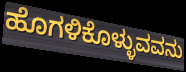
ಹೊಗಳಿಕೊಳ್ಳುವವನು